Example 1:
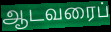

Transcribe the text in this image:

ஆடவரைப்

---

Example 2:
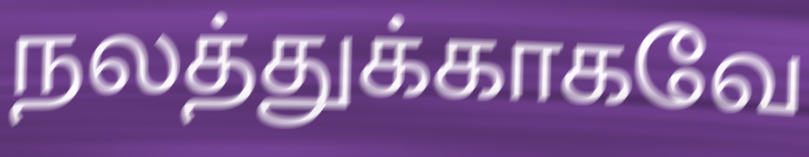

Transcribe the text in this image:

நலத்துக்காகவே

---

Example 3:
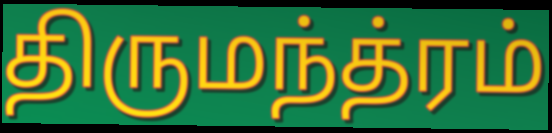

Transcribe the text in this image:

திருமந்த்ரம்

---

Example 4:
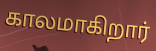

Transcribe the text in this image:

காலமாகிறார்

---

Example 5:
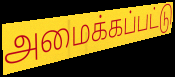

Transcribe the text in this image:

அமைக்கப்பட்டு